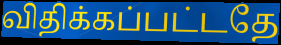
விதிக்கப்பட்டதே